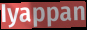
Iyappan